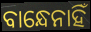
ବାନ୍ଧେନାହିଁ